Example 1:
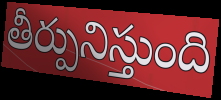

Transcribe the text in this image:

తీర్పునిస్తుంది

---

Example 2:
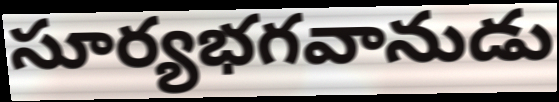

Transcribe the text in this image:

సూర్యభగవానుడు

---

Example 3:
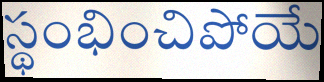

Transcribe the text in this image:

స్థంభించిపోయే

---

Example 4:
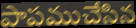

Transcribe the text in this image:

పాపముచేసిన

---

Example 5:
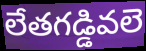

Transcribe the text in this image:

లేతగడ్డివలె